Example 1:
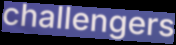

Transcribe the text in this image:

challengers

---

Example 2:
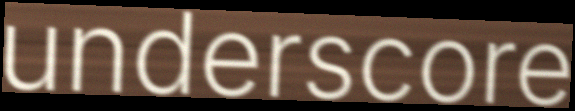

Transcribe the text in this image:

underscore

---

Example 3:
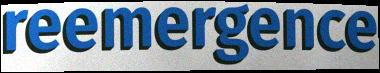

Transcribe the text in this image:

reemergence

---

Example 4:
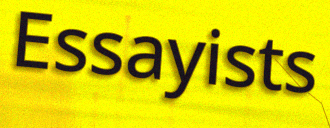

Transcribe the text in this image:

Essayists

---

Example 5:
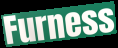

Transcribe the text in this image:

Furness